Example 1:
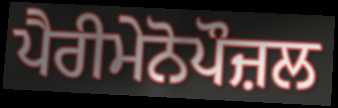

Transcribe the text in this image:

ਪੈਰੀਮੇਨੋਪੌਜ਼ਲ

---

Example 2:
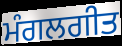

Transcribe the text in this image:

ਮੰਗਲਗੀਤ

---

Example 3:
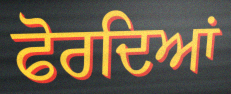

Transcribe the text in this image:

ਫੋਰਦਿਆਂ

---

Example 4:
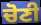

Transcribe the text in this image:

ਚੋਣੀ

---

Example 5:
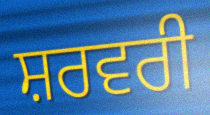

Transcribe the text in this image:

ਸ਼ਰਵਰੀ